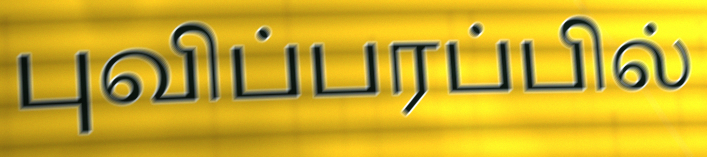
புவிப்பரப்பில்